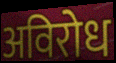
अविरोध